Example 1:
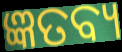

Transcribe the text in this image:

ଜ୍ଞତବ୍ୟ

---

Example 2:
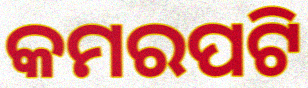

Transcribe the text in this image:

କମରପଟି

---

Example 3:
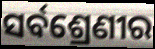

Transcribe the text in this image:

ସର୍ବଶ୍ରେଣୀର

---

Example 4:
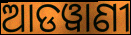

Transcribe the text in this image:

ଆଡୱାଣୀ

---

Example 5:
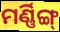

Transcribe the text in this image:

ମର୍ଣ୍ଣିଙ୍ଗ୍